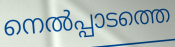
നെൽപ്പാടത്തെ